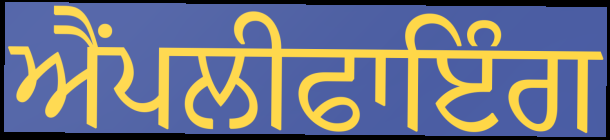
ਐਂਪਲੀਫਾਇੰਗ